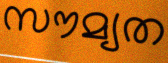
സൗമ്യത